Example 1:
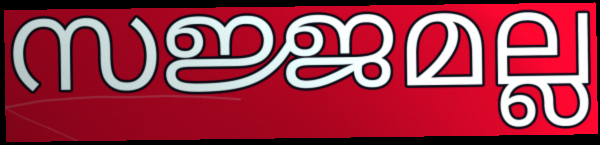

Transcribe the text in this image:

സജ്ജമല്ല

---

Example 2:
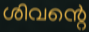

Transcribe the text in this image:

ശിവന്റെ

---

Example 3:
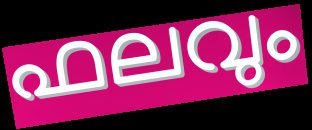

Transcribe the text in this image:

ഫലവും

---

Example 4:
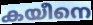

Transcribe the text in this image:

കയീനെ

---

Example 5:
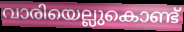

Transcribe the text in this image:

വാരിയെല്ലുകൊണ്ട്